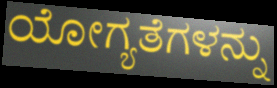
ಯೋಗ್ಯತೆಗಳನ್ನು